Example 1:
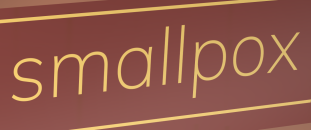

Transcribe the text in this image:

smallpox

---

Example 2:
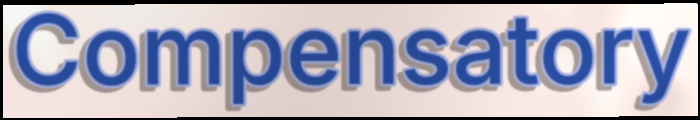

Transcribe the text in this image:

Compensatory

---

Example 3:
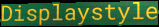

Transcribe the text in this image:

Displaystyle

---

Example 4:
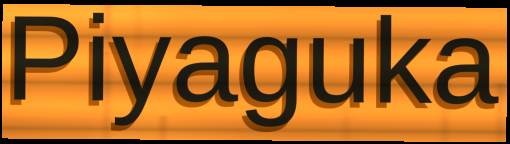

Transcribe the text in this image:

Piyaguka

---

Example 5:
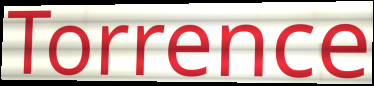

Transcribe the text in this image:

Torrence